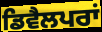
ਡਿਵੈਲਪਰਾਂ